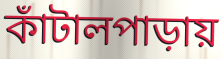
কাঁটালপাড়ায়